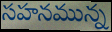
సహనమున్న